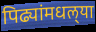
पिढ्यांमधल्या